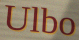
Ulbo